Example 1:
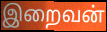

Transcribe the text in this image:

இறைவன்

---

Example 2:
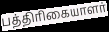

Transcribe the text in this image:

பத்திரிகையாளர்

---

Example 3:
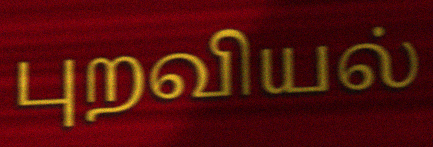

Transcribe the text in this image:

புறவியல்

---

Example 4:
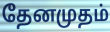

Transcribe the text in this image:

தேனமுதம்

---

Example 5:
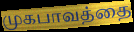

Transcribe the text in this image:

முகபாவத்தை